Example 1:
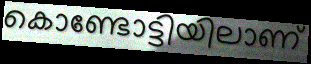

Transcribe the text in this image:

കൊണ്ടോട്ടിയിലാണ്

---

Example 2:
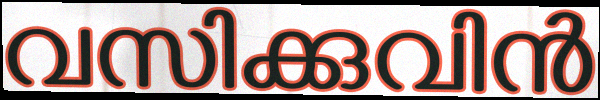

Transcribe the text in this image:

വസിക്കുവിൻ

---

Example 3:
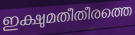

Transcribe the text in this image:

ഇക്ഷുമതീതീരത്തെ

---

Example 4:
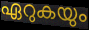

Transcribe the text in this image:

ഏറുകയും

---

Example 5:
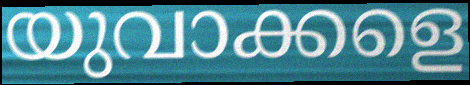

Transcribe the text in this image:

യുവാക്കളെ